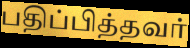
பதிப்பித்தவர்